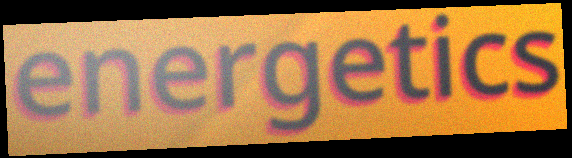
energetics